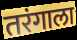
तरंगाला